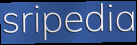
sripedia